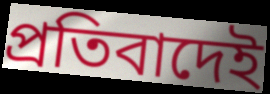
প্রতিবাদেই